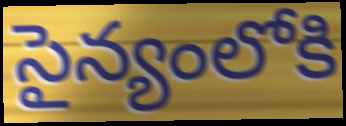
సైన్యంలోకి